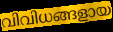
വിവിധങ്ങളായ